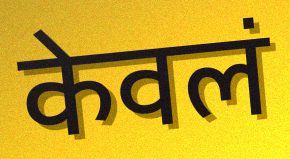
केवलं